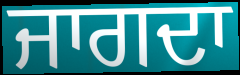
ਜਾਗਦਾ